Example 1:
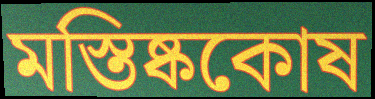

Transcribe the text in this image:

মস্তিষ্ককোষ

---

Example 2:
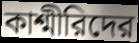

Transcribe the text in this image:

কাশ্মীরিদের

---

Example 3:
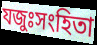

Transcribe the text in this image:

যজুঃসংহিতা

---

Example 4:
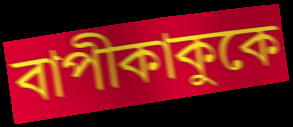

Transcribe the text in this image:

বাপীকাকুকে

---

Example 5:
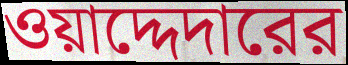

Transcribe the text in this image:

ওয়াদ্দেদারের